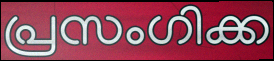
പ്രസംഗിക്ക